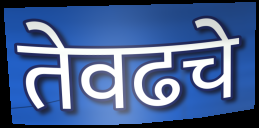
तेवढचे